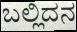
ಬಲ್ಲಿದನ